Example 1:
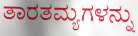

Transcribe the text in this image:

ತಾರತಮ್ಯಗಳನ್ನು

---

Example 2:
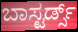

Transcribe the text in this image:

ಬಾಸ್ಟರ್ಡ್ಸ್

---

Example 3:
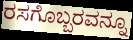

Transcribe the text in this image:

ರಸಗೊಬ್ಬರವನ್ನೂ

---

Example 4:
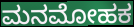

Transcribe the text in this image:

ಮನಮೋಹಕ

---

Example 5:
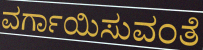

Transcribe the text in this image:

ವರ್ಗಾಯಿಸುವಂತೆ